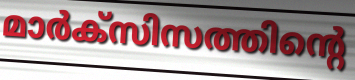
മാർക്സിസത്തിന്റെ